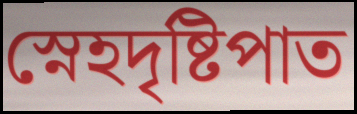
স্নেহদৃষ্টিপাত